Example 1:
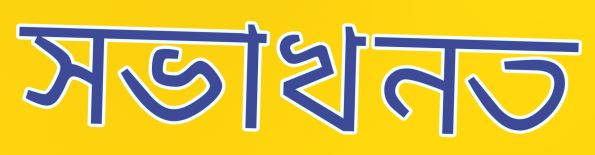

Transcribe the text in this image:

সভাখনত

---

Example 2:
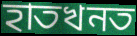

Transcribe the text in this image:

হাতখনত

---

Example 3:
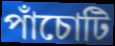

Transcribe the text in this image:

পাঁচোটি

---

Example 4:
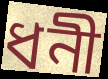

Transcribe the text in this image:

ধনী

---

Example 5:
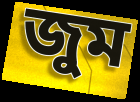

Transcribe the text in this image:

জুম